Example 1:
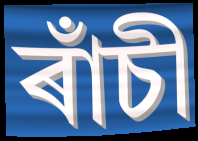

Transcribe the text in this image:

ৰাঁচী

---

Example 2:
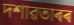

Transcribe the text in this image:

দশাৱতাৰৰ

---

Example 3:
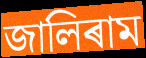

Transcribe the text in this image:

জালিৰাম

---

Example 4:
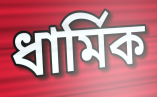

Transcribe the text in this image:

ধাৰ্মিক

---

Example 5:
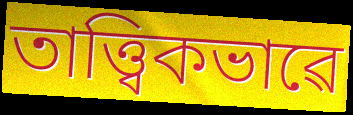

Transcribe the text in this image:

তাত্ত্বিকভাৱে